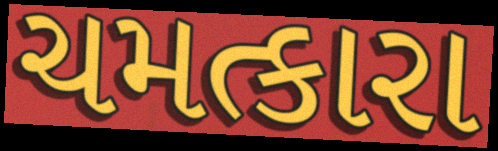
ચમત્કારા